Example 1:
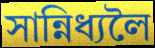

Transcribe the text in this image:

সান্নিধ্যলৈ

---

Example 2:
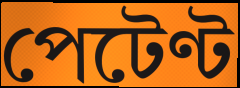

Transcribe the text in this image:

পেটেণ্ট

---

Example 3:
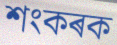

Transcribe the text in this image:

শংকৰক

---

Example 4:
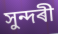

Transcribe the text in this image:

সুন্দৰী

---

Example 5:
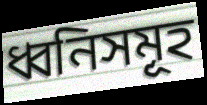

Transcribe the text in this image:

ধ্বনিসমূহ